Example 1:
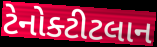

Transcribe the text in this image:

ટેનોક્ટીટલાન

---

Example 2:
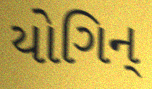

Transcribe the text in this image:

યોગિન્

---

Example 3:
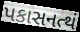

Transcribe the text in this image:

પકાસનત્થં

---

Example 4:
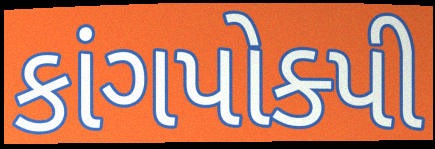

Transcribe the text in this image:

કાંગપોક્પી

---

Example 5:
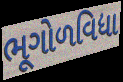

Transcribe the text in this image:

ભૂગોળવિદ્યા